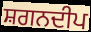
ਸ਼ਗਨਦੀਪ